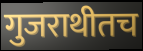
गुजराथीतच